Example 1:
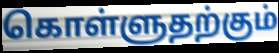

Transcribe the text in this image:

கொள்ளுதற்கும்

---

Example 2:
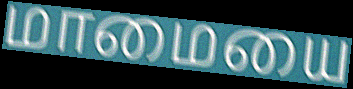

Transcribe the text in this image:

மாமையை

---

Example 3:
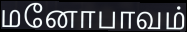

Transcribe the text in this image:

மனோபாவம்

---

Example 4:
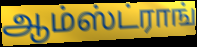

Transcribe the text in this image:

ஆம்ஸ்ட்ராங்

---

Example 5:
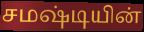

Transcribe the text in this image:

சமஷ்டியின்